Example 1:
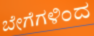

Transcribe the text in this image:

ಬೇಗೆಗಳಿಂದ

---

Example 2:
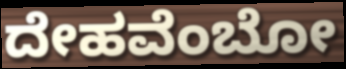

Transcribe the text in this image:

ದೇಹವೆಂಬೋ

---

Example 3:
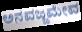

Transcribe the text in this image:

ಅನವಜ್ಜಮೇವ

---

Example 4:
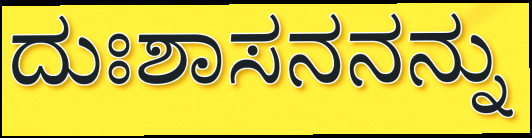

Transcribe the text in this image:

ದುಃಶಾಸನನನ್ನು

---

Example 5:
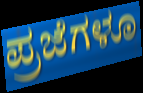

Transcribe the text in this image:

ಪ್ರಜೆಗಳೂ